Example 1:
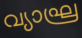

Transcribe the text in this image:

വ്യാഘ്ര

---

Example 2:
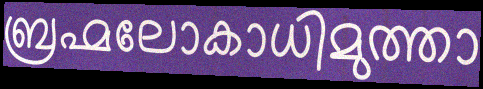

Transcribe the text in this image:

ബ്രഹ്മലോകാധിമുത്താ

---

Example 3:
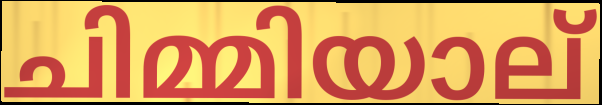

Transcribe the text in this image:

ചിമ്മിയാല്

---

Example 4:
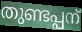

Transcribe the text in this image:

തുണ്ടപ്പന്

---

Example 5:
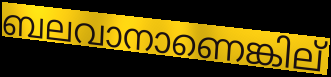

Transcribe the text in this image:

ബലവാനാണെങ്കില്